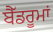
ਬੈੱਡਰੂਮਾਂ